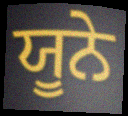
ਯੂਨੇ